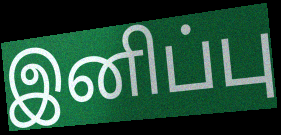
இனிப்பு